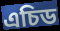
এচিড